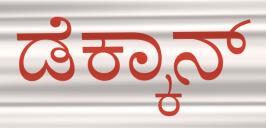
ಡೆಕ್ಕಾನ್